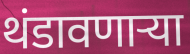
थंडावणाऱ्या